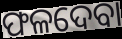
ଫଳଦେବା